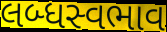
લબ્ધસ્વભાવ